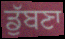
ਡੁੱਬਣਾ